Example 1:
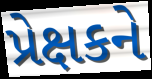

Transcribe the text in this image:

પ્રેક્ષકને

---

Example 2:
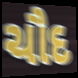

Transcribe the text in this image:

ચૌદ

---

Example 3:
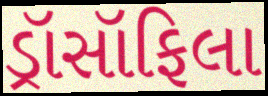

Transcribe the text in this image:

ડ્રૉસૉફિલા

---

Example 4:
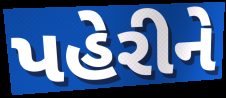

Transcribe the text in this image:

પહેરીને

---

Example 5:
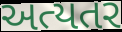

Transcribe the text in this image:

અત્યતર